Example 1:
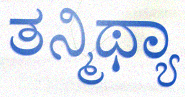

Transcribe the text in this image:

ತನ್ಮಿಥ್ಯಾ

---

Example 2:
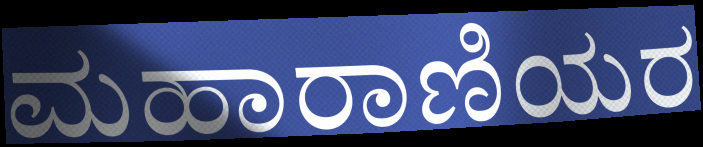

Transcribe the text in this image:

ಮಹಾರಾಣಿಯರ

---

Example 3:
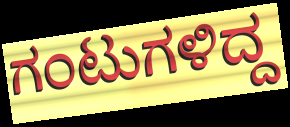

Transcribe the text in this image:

ಗಂಟುಗಳಿದ್ದ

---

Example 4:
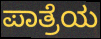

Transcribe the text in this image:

ಪಾತ್ರೆಯ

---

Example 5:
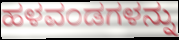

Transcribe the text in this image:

ಹಳವಂಡಗಳನ್ನು